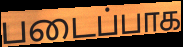
படைப்பாக